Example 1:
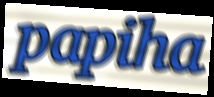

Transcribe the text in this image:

papiha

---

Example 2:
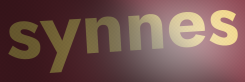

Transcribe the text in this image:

synnes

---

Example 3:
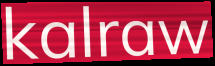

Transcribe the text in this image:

kalraw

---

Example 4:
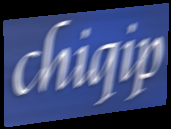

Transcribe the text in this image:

chiqip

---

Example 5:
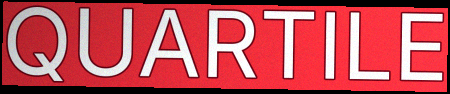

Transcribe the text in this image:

QUARTILE